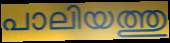
പാലിയത്തു